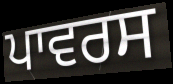
ਪਾਵਰਸ